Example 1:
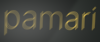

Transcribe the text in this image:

pamari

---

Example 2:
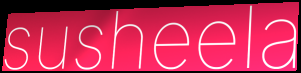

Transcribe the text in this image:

susheela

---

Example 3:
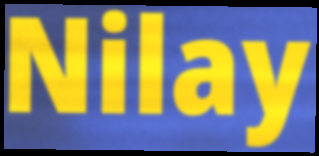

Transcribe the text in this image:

Nilay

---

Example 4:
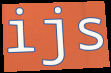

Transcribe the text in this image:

ijs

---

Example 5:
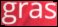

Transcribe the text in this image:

gras